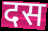
दस